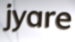
jyare